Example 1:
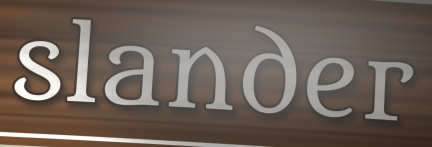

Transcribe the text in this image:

slander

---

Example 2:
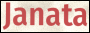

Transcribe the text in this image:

Janata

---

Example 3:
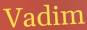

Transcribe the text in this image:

Vadim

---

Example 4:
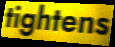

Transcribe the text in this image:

tightens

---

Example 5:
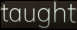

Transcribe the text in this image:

taught